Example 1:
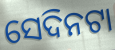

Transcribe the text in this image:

ସେଦିନଟା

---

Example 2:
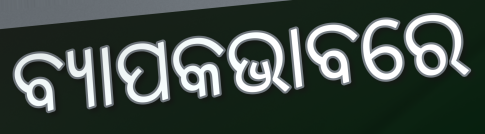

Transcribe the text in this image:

ବ୍ୟାପକଭାବରେ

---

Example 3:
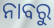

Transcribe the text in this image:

ନାବରୁ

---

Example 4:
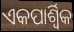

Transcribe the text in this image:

ଏକପାର୍ଶ୍ୱିକ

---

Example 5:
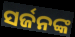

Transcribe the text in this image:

ସର୍ଜନଙ୍କ